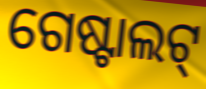
ଗେଷ୍ଟାଲଟ୍